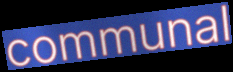
communal